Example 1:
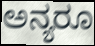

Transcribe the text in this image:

ಅನ್ಯರೂ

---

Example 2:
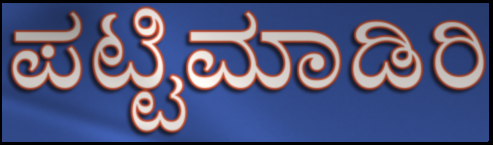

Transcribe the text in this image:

ಪಟ್ಟಿಮಾಡಿರಿ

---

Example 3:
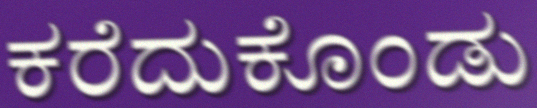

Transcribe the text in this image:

ಕರೆದುಕೊಂಡು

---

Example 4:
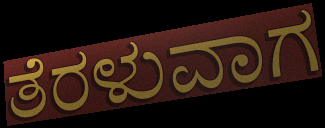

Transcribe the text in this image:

ತೆರಳುವಾಗ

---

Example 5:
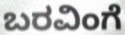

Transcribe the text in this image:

ಬರವಿಂಗೆ